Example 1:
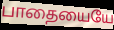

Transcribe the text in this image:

பாதையையே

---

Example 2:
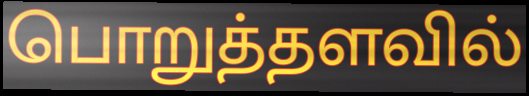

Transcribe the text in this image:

பொறுத்தளவில்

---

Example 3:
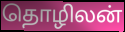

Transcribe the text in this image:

தொழிலன்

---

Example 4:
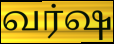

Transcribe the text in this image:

வர்ஷ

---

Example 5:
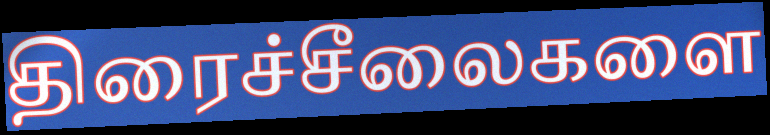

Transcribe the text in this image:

திரைச்சீலைகளை